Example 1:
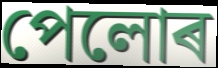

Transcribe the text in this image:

পেলোৰ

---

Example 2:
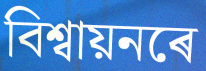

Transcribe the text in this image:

বিশ্বায়নৰে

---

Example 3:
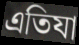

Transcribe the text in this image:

এতিযা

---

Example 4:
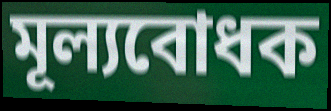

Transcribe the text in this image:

মূল্যবোধক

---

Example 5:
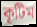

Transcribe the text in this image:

কৃটিম